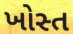
ખોસ્ત